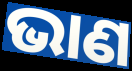
ଭାଣ